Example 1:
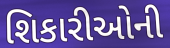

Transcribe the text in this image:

શિકારીઓની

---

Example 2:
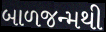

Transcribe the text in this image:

બાળજન્મથી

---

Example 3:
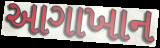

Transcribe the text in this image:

આગાખાન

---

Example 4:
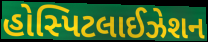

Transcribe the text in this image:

હોસ્પિટલાઈઝેશન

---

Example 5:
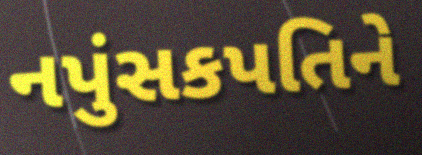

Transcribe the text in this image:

નપુંસકપતિને